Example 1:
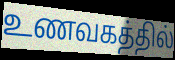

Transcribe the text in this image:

உணவகத்தில்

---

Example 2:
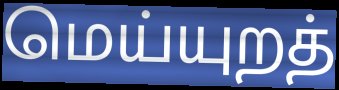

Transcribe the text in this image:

மெய்யுறத்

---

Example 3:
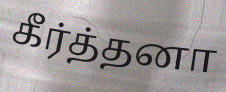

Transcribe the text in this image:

கீர்த்தனா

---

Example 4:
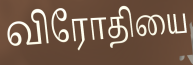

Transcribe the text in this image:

விரோதியை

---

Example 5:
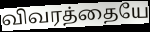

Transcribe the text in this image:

விவரத்தையே